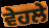
ਵੇਹਲੇ